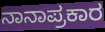
ನಾನಾಪ್ರಕಾರ